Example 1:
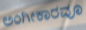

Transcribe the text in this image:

ಅಂಗೀಕಾರವೂ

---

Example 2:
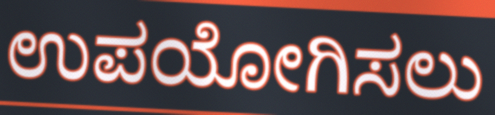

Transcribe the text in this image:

ಉಪಯೋಗಿಸಲು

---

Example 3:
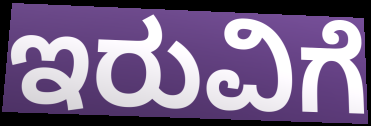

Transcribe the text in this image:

ಇರುವಿಗೆ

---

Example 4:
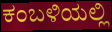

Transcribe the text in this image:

ಕಂಬಳಿಯಲ್ಲಿ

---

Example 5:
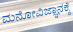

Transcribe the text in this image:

ಮನೋವಿಜ್ಞಾನಕ್ಕೆ